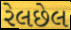
રેલછેલ